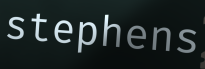
stephens